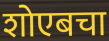
शोएबचा